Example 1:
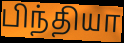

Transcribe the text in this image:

பிந்தியா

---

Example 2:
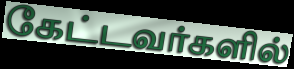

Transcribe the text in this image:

கேட்டவர்களில்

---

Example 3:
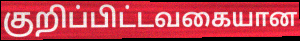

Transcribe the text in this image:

குறிப்பிட்டவகையான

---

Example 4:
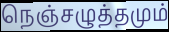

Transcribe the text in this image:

நெஞ்சழுத்தமும்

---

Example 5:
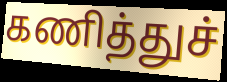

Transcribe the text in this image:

கணித்துச்